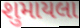
શુમાયલા